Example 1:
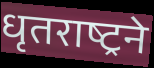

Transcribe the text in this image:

धृतराष्ट्रने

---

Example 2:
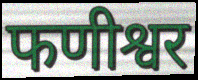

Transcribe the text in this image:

फणीश्वर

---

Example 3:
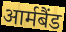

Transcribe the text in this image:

आर्मबैंड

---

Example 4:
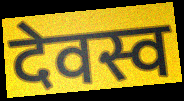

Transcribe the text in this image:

देवस्व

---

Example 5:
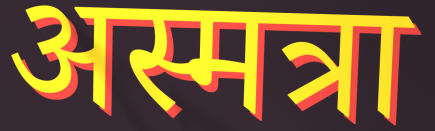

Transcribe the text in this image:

अस्मत्रा